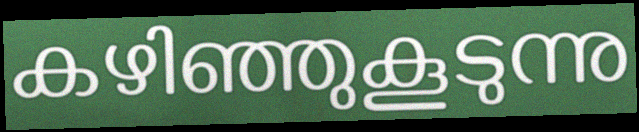
കഴിഞ്ഞുകൂടുന്നു